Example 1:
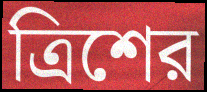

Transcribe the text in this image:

ত্রিশের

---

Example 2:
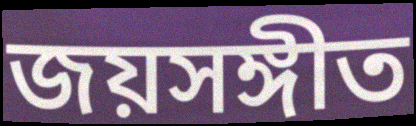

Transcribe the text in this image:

জয়সঙ্গীত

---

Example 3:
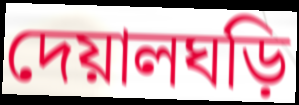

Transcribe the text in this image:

দেয়ালঘড়ি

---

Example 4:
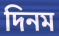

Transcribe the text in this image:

দিনম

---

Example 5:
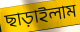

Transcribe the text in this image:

ছাড়াইলাম